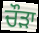
ਚੌੜਾ